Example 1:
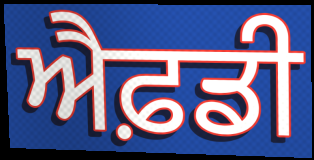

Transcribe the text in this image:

ਐਫ਼ਡੀ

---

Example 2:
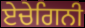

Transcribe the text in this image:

ਏਚੇਗਿਨੀ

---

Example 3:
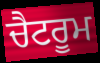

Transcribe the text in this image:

ਚੈਟਰੂਮ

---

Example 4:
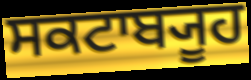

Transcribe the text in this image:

ਸਕਟਾਬ੍ਯੂਹ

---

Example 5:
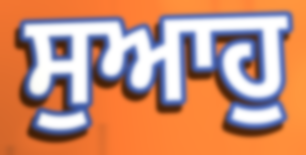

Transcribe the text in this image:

ਸੁਆਹੁ